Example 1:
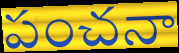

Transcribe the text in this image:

పంచనా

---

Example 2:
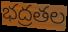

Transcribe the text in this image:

భద్రతల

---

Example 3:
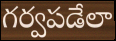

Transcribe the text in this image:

గర్వపడేలా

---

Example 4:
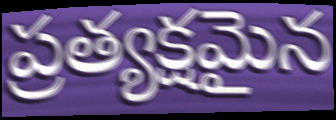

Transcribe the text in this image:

ప్రత్యక్షమైన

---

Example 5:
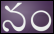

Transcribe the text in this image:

నం